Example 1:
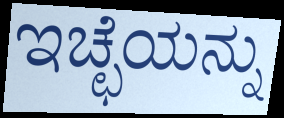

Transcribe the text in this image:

ಇಚ್ಛೆಯನ್ನು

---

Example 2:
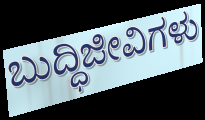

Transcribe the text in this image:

ಬುದ್ಧಿಜೀವಿಗಳು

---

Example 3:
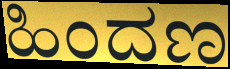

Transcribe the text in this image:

ಹಿಂದಣ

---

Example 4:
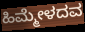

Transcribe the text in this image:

ಹಿಮ್ಮೇಳದವ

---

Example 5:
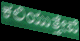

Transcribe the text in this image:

ಕಲಿಯುತ್ತೇವೆ